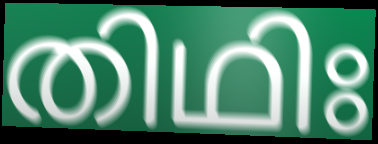
തിഥിഃ